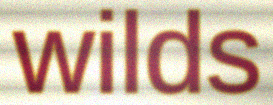
wilds